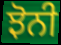
ਝੋਨੀ